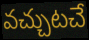
వచ్చుటచే